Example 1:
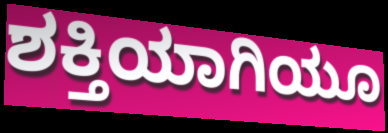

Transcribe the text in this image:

ಶಕ್ತಿಯಾಗಿಯೂ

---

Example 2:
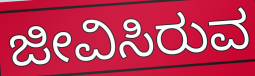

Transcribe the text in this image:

ಜೀವಿಸಿರುವ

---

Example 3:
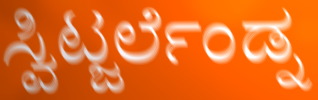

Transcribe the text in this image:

ಸ್ವಿಟ್ಜರ್ಲೆಂಡ್ನ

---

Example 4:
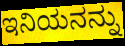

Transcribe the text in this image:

ಇನಿಯನನ್ನು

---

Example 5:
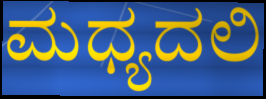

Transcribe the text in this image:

ಮಧ್ಯದಲಿ